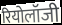
रियोलॉजी